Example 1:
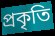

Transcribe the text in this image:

প্ৰকৃতি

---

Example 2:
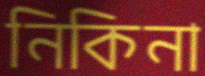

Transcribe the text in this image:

নিকিনা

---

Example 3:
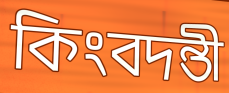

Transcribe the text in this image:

কিংবদন্তী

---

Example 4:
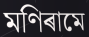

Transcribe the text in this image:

মণিৰামে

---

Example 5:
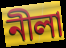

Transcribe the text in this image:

নীলা